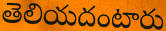
తెలియదంటారు